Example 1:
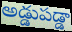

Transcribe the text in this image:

అడ్డుపడ్డా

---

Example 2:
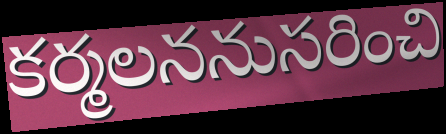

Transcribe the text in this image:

కర్మలననుసరించి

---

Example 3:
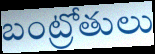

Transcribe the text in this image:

బంట్రోతులు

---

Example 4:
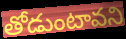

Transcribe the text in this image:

తోడుంటావని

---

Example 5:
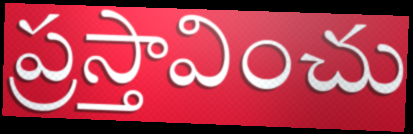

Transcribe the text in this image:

ప్రస్తావించు